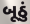
બૂઠું